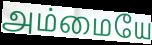
அம்மையே